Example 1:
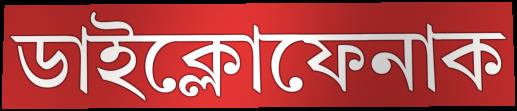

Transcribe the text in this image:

ডাইক্লোফেনাক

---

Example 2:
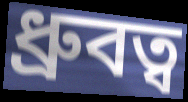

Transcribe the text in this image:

ধ্রুবত্ব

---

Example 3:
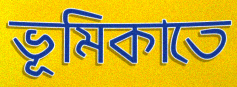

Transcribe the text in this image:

ভূমিকাতে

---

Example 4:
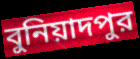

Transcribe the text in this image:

বুনিয়াদপুর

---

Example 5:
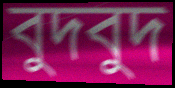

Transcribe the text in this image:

বুদবুদ